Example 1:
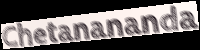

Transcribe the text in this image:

Chetanananda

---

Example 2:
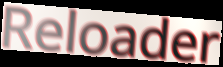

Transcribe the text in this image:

Reloader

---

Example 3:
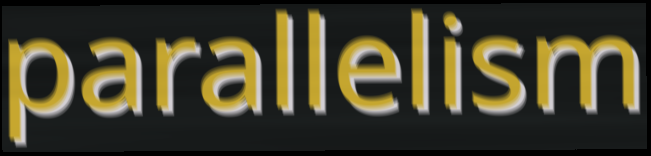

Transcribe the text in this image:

parallelism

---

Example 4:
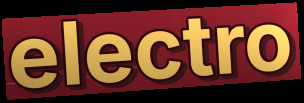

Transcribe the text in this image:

electro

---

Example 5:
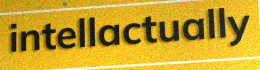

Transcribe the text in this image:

intellactually